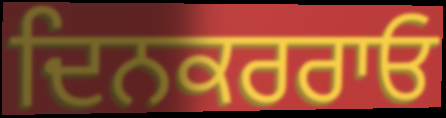
ਦਿਨਕਰਰਾਓ